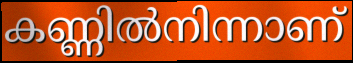
കണ്ണിൽനിന്നാണ്